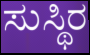
ಸುಸ್ಥಿರ